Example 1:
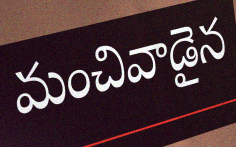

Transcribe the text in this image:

మంచివాడైన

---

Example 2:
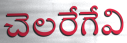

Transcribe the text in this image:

చెలరేగేవి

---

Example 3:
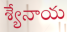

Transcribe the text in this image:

శ్యేనాయ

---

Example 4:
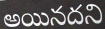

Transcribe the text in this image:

అయినదని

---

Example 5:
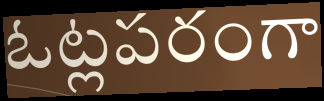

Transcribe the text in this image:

ఓట్లపరంగా